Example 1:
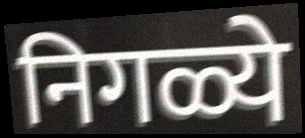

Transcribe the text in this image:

निगळ्ये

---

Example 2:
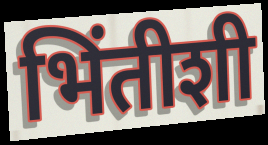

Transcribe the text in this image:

भिंतीशी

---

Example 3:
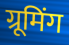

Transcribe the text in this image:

ग्रूमिंग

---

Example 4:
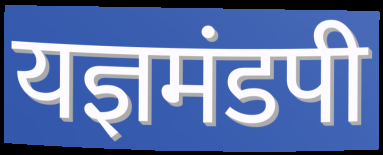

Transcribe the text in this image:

यज्ञमंडपी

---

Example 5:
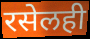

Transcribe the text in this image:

रसेलही